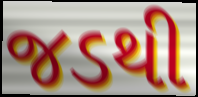
જડથી